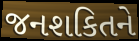
જનશકિતને